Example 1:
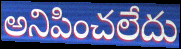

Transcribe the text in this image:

అనిపించలేదు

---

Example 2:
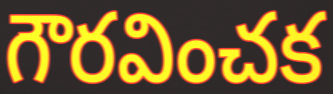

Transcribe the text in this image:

గౌరవించక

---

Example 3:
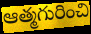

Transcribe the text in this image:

ఆత్మగురించి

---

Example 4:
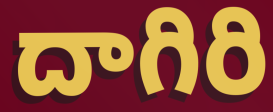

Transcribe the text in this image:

దాగిరి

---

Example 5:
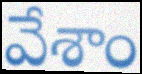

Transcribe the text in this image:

వేశాం